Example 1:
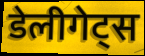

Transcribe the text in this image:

डेलीगेट्स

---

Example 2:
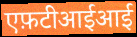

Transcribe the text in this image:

एफ़टीआईआई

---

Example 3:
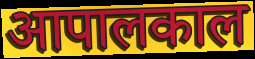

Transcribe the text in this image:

आपालकाल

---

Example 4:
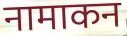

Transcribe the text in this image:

नामाकन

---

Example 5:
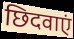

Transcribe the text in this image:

छिदवाएं